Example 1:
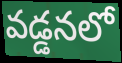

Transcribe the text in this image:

వడ్డనలో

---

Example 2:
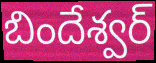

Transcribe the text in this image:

బిందేశ్వర్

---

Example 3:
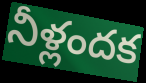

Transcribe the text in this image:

నీళ్లందక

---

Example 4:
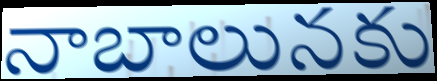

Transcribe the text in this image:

నాబాలునకు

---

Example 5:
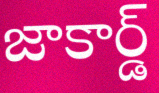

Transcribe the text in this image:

జాకార్డ్